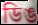
ডিঙ